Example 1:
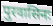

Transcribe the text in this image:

पुरवासिनः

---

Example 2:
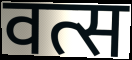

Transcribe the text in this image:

वत्स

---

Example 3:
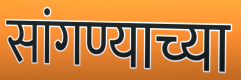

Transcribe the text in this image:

सांगण्याच्या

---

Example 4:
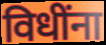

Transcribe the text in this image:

विधींना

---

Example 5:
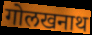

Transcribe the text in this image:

गोलखनाथ